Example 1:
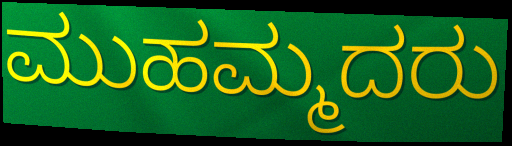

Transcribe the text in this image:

ಮುಹಮ್ಮದರು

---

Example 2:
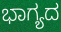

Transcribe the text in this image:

ಭಾಗ್ಯದ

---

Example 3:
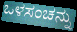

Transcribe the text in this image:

ಒಳಸಂಚನ್ನು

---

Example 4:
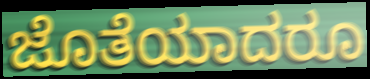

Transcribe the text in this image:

ಜೊತೆಯಾದರೂ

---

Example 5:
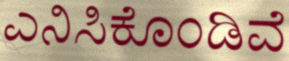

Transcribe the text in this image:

ಎನಿಸಿಕೊಂಡಿವೆ